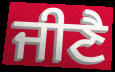
ਜੀਣੈ